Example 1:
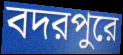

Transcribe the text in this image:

বদরপুরে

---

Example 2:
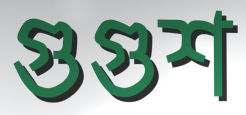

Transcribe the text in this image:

গুগুশ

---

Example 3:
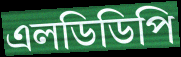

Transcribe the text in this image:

এলডিডিপি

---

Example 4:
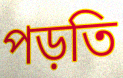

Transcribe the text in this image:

পড়তি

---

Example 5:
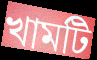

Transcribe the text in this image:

খামটি